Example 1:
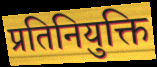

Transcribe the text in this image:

प्रतिनियुक्ति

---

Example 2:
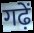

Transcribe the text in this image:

गढ़ें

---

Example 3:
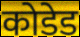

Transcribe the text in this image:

कोडेड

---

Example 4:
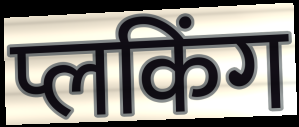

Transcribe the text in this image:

प्लकिंग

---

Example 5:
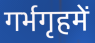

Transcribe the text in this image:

गर्भगृहमें